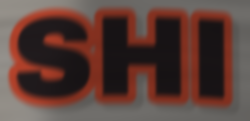
SHI